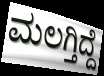
ಮಲಗ್ತಿದ್ದೆ